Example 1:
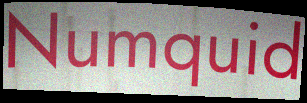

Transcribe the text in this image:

Numquid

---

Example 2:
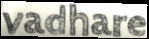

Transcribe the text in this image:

vadhare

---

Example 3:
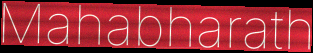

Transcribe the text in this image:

Mahabharath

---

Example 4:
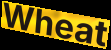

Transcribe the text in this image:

Wheat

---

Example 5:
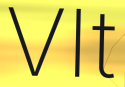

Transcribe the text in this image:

VIt